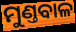
ମୁଣ୍ତବାଳ